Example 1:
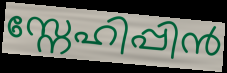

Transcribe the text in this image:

സ്നേഹിപ്പിൻ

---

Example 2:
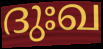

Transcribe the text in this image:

ദുഃഖ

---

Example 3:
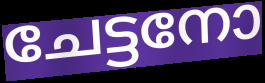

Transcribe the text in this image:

ചേട്ടനോ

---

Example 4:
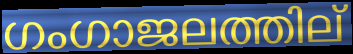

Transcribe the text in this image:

ഗംഗാജലത്തില്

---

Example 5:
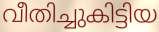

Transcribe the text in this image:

വീതിച്ചുകിട്ടിയ